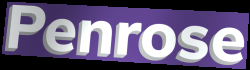
Penrose